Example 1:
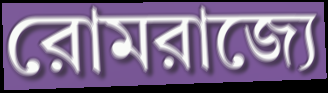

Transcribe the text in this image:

রোমরাজ্যে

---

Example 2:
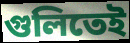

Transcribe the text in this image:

গুলিতেই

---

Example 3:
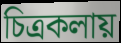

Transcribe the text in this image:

চিত্রকলায়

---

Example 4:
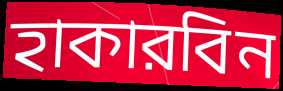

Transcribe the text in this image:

হাকারবিন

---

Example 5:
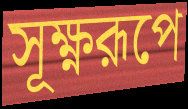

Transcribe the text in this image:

সূক্ষ্ণরূপে